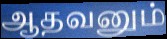
ஆதவனும்